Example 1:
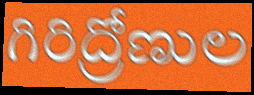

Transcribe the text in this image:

గిరిద్రోణుల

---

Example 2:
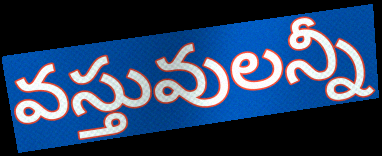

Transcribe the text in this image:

వస్తువులన్నీ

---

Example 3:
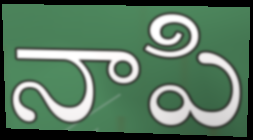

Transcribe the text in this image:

నాపి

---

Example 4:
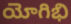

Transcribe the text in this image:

యోగిభి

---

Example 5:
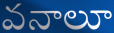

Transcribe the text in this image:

వనాలూ